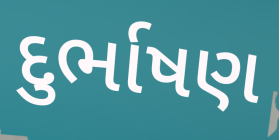
દુર્ભાષણ